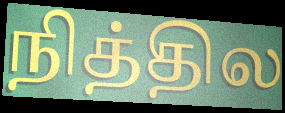
நித்தில